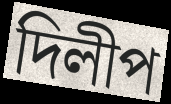
দিলীপ